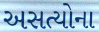
અસત્યોના